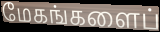
மேகங்களைப்